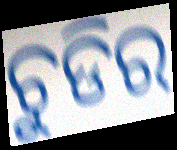
ଚୁଡିର